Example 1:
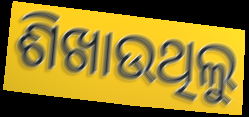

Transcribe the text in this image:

ଶିଖାଉଥିଲୁ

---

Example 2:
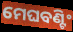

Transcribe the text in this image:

ମେଘବଣ୍ଟିଂ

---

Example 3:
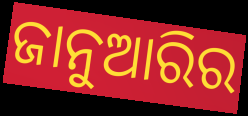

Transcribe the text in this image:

ଜାନୁଆରିର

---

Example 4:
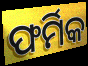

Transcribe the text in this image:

ଫର୍ମିକ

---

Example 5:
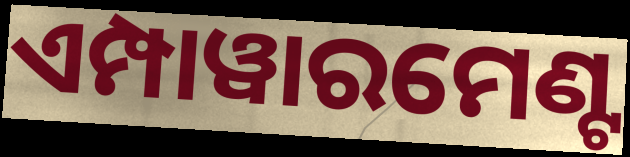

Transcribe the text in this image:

ଏମ୍ପାୱାରମେଣ୍ଟ